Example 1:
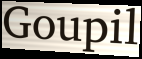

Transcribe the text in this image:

Goupil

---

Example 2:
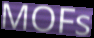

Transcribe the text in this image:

MOFs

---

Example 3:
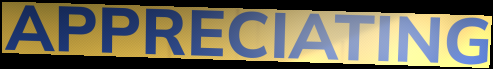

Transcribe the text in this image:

APPRECIATING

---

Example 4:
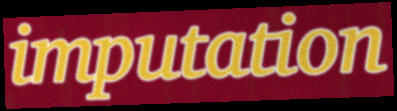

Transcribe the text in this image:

imputation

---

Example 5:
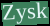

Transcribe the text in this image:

Zysk